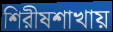
শিরীষশাখায়